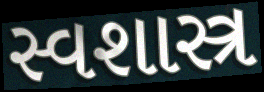
સ્વશાસ્ત્ર